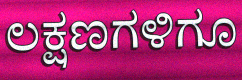
ಲಕ್ಷಣಗಳಿಗೂ